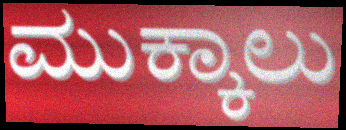
ಮುಕ್ಕಾಲು